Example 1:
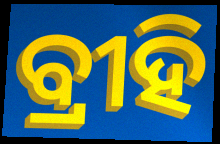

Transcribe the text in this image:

ବ୍ରୀହି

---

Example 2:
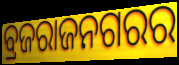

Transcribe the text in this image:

ବ୍ରଜରାଜନଗରର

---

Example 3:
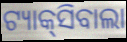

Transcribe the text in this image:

ଟ୍ୟାକ୍‌ସିବାଲା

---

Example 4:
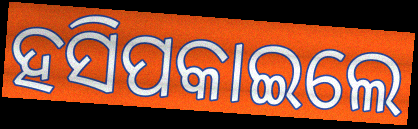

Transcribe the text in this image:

ହସିପକାଇଲେ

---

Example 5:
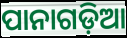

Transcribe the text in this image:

ପାନାଗଡ଼ିଆ